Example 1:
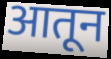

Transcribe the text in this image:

आतून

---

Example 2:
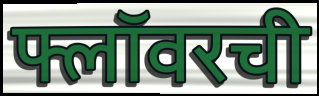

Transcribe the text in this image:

फ्लॉवरची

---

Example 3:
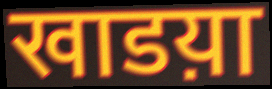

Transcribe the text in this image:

खाडय़ा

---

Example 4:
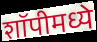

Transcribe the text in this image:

शॉपीमध्ये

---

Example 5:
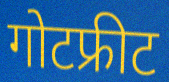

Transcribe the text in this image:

गोटफ्रीट